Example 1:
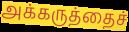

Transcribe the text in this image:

அக்கருத்தைச்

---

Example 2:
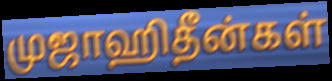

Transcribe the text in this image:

முஜாஹிதீன்கள்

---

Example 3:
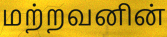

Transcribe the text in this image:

மற்றவனின்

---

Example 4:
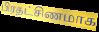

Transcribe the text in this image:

பிரதட்சிணமாக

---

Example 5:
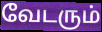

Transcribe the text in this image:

வேடரும்